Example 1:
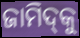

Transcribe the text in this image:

ଜାମିଦ୍‌କୁ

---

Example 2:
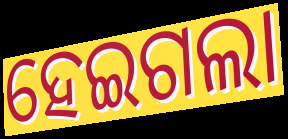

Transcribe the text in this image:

ହେଇଗଲା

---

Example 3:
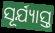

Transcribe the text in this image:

ସୂର୍ଯ୍ୟାସ୍ତ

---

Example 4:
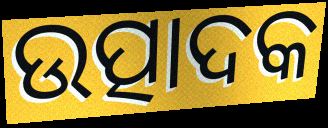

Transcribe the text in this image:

ଉତ୍ପାଦକ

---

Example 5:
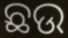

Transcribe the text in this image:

ଛଉ